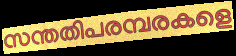
സന്തതിപരമ്പരകളെ